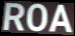
ROA